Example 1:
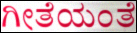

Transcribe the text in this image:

ಗೀತೆಯಂತೆ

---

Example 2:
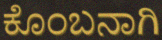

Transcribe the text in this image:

ಕೊಂಬನಾಗಿ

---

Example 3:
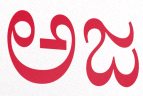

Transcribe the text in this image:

ಅಜ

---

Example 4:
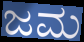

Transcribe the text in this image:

ಜಮ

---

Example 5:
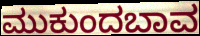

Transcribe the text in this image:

ಮುಕುಂದಬಾವ